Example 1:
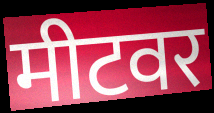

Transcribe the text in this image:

मीटवर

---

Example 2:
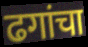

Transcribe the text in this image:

ढगांचा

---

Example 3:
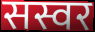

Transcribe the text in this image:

सस्वर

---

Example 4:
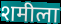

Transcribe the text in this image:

शमीला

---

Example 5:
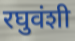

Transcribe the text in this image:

रघुवंशी